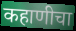
कहाणीचा